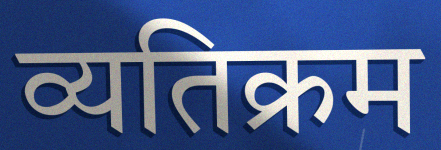
व्यतिक्रम